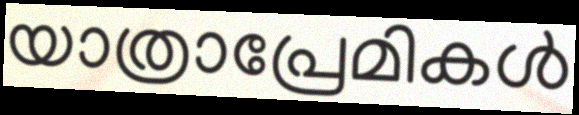
യാത്രാപ്രേമികൾ